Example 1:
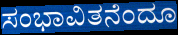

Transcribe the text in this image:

ಸಂಭಾವಿತನೆಂದೂ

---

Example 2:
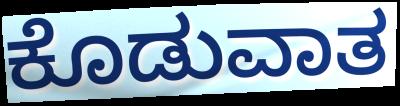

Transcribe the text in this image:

ಕೊಡುವಾತ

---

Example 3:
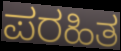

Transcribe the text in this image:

ಪರಹಿತ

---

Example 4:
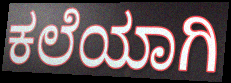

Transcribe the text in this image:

ಕಲೆಯಾಗಿ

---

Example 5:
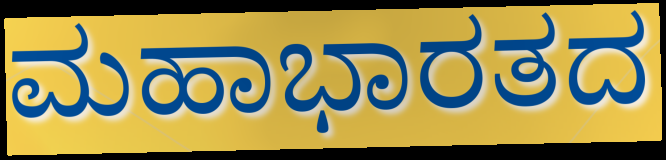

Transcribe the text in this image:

ಮಹಾಭಾರತದ